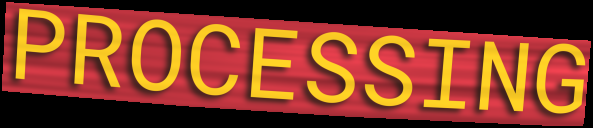
PROCESSING